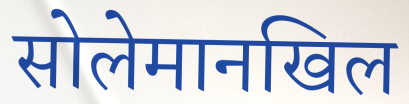
सोलेमानखिल